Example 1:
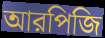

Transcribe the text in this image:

আরপিজি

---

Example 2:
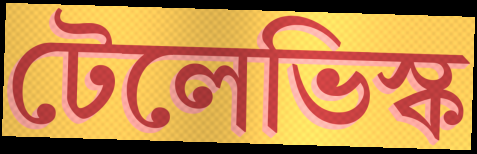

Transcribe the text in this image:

টেলেভিস্ক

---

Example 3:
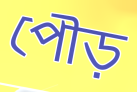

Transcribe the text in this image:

পৌড়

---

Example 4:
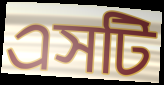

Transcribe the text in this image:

এসটি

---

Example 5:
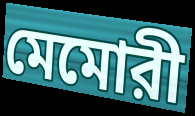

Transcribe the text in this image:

মেমোরী